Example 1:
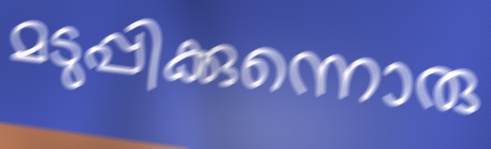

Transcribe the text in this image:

മടുപ്പിക്കുന്നൊരു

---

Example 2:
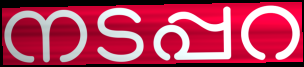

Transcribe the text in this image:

നടപ്പറ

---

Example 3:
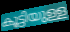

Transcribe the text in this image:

കൂട്ടിയുള്ള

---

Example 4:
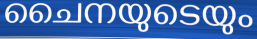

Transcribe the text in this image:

ചൈനയുടെയും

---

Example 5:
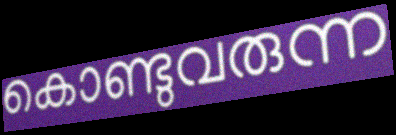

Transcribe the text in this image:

കൊണ്ടുവരുന്ന